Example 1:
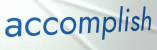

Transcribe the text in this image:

accomplish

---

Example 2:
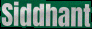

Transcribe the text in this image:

Siddhant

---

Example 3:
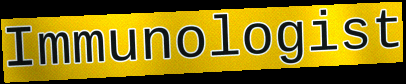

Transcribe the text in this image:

Immunologist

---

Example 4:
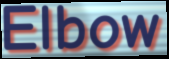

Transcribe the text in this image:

Elbow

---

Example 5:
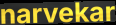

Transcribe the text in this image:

narvekar